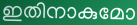
ഇതിനാകുമോ